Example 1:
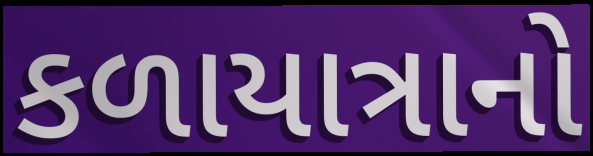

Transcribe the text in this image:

કળાયાત્રાનો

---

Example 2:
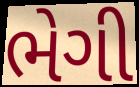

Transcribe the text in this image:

ભેગી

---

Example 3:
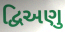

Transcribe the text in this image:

દ્વિઅણુ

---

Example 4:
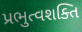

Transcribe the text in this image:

પ્રભુત્વશક્તિ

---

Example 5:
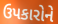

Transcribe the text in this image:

ઉપકારોને